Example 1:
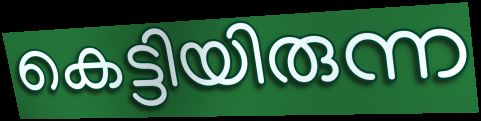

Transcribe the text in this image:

കെട്ടിയിരുന്ന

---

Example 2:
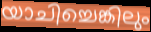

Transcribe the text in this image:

യാചിച്ചെങ്കിലും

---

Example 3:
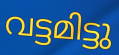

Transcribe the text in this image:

വട്ടമിട്ടു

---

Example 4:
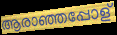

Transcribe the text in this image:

ആരാഞ്ഞപ്പോള്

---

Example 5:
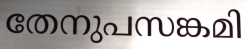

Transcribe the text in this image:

തേനുപസങ്കമി